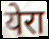
येरा